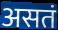
असतं